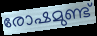
രോഷമുണ്ട്